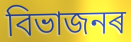
বিভাজনৰ